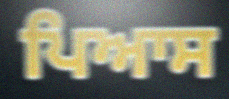
ਪਿਆਸ